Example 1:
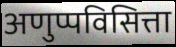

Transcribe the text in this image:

अणुप्पविसित्ता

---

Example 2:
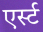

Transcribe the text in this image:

एर्स्ट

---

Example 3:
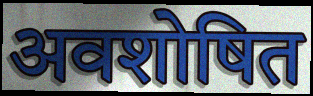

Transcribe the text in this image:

अवशोषित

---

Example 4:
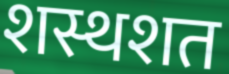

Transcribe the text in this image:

शस्थशत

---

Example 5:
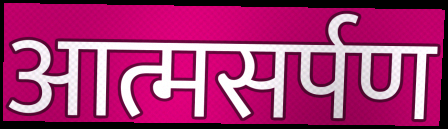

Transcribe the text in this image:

आत्मसर्पण